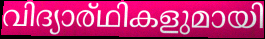
വിദ്യാര്ഥികളുമായി